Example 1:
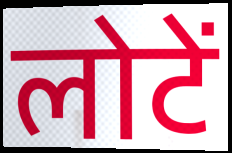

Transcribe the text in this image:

लोटें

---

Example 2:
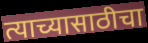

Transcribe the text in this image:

त्याच्यासाठीचा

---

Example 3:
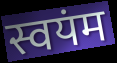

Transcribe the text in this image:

स्वयंम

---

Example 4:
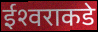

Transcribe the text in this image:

ईश्वराकडे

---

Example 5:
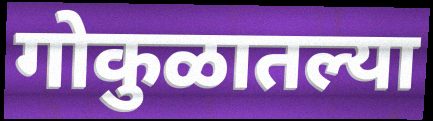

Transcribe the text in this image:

गोकुळातल्या